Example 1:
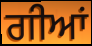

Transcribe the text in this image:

ਗੀਆਂ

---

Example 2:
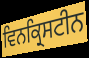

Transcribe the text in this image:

ਵਿਨਕ੍ਰਿਸਟੀਨ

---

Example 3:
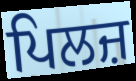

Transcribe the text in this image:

ਪਿਲਜ਼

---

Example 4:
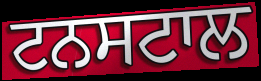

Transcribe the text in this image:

ਟਨਸਟਾਲ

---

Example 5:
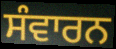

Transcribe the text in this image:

ਸੰਵਾਰਨ